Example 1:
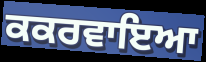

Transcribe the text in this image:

ਕਕਰਵਾਇਆ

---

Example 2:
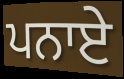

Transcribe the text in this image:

ਪਨਾਏ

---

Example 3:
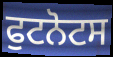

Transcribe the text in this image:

ਫੁਟਨੋਟਸ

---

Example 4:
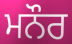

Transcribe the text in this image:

ਮਨੌਰ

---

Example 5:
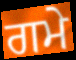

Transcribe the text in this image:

ਗਮੇ